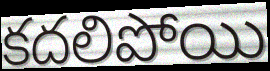
కదలిపోయి